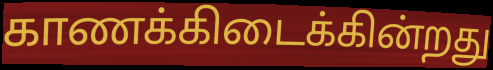
காணக்கிடைக்கின்றது